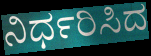
ನಿರ್ಧರಿಸಿದ